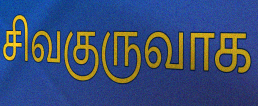
சிவகுருவாக